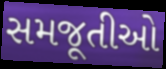
સમજૂતીઓ